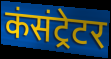
कंसंट्रेटर